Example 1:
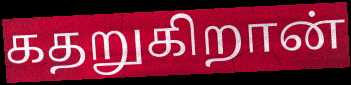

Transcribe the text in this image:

கதறுகிறான்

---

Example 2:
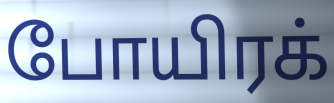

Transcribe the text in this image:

போயிரக்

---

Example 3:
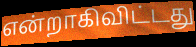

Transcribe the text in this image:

என்றாகிவிட்டது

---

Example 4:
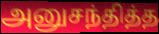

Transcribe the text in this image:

அனுசந்தித்த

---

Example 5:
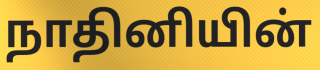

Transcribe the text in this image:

நாதினியின்